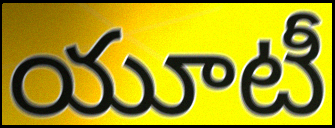
యూటీ